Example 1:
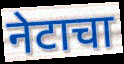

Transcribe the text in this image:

नेटाचा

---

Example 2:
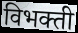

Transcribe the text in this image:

विभक्ती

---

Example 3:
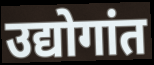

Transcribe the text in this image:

उद्योगांत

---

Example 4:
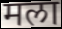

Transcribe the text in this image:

मला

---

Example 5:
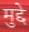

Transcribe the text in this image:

मुद्दे